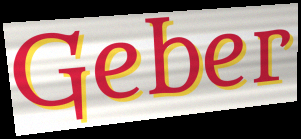
Geber